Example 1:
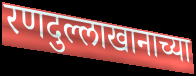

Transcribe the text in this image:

रणदुल्लाखानाच्या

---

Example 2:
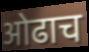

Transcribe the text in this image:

ओढाच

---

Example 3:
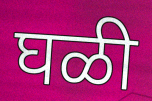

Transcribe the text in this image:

घळी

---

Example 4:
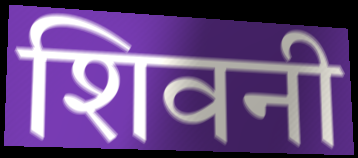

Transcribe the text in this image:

शिवनी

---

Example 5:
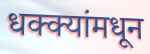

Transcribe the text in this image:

धक्क्यांमधून